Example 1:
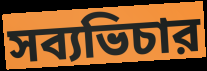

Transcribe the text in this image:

সব্যভিচার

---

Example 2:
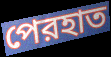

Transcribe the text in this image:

পেরহাত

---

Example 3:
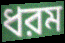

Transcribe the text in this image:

ধরম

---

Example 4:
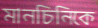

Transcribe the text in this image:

মানচিনিকে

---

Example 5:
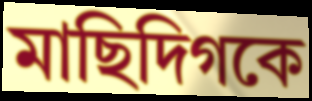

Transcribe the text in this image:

মাছিদিগকে